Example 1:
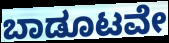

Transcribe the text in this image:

ಬಾಡೂಟವೇ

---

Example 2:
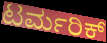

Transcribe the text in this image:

ಟರ್ಮರಿಕ್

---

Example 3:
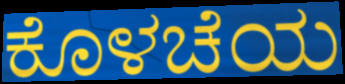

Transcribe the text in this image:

ಕೊಳಚೆಯ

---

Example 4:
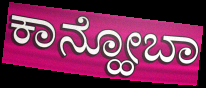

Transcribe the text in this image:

ಕಾನ್ಹೋಬಾ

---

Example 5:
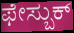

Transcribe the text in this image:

ಫೇಸ್ಬುಕ್